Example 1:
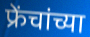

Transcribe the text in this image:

फ्रेंचांच्या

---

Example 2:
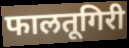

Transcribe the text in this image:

फालतूगिरी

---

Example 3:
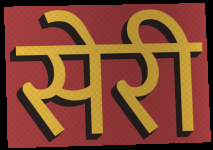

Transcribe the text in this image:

सेरी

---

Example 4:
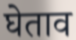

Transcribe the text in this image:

घेताव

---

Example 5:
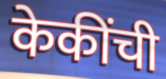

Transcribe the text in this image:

केकींची